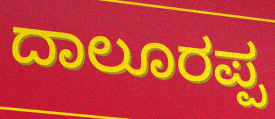
ದಾಲೂರಪ್ಪ